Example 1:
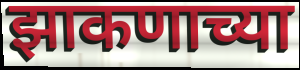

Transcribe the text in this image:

झाकणाच्या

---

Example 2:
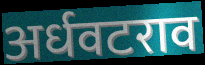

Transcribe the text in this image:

अर्धवटराव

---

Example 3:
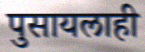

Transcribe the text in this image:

पुसायलाही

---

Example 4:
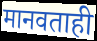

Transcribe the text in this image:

मानवताही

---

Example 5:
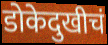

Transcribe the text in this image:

डोकेदुखीचं